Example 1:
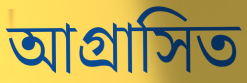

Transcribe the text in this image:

আগ্রাসিত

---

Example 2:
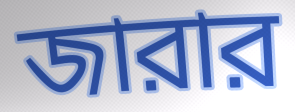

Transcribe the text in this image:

জারার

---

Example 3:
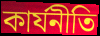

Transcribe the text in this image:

কার্যনীতি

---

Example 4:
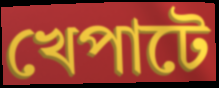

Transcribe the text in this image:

খেপাটে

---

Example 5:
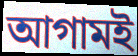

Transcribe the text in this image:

আগামই